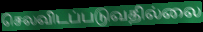
செலவிடப்படுவதில்லை